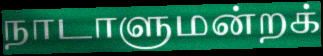
நாடாளுமன்றக்